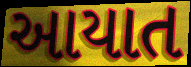
આયાત